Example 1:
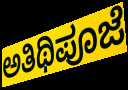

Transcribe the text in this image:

ಅತಿಥಿಪೂಜೆ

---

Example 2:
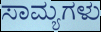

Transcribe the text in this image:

ಸಾಮ್ಯಗಳು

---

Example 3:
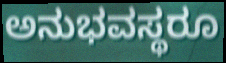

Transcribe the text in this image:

ಅನುಭವಸ್ಥರೂ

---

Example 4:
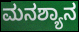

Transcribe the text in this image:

ಮನಶ್ಯಾನ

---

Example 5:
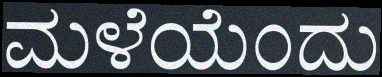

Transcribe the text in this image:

ಮಳೆಯೆಂದು